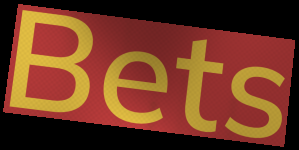
Bets